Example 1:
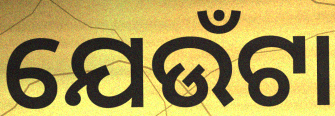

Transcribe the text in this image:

ଯେଉଁଟା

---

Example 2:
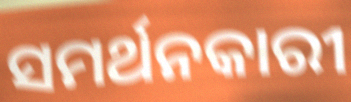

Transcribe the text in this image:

ସମର୍ଥନକାରୀ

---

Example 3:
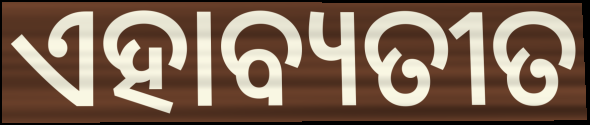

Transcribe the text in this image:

ଏହାବ୍ୟତୀତ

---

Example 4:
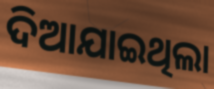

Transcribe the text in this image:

ଦିଆଯାଇଥିଲା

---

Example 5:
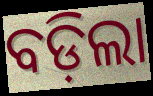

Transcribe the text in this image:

ବଡ଼ିଲା